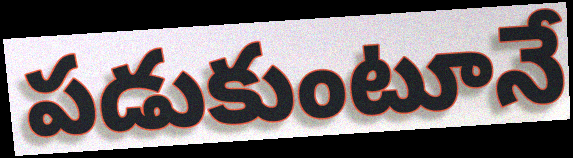
పడుకుంటూనే